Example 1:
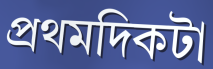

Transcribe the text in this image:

প্রথমদিকটা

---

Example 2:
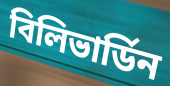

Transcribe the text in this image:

বিলিভার্ডিন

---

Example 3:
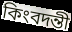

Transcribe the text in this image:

কিংবদন্তী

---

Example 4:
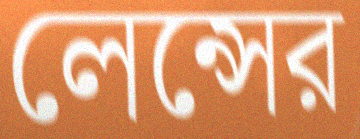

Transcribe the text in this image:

লেন্সের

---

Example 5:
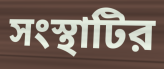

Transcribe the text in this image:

সংস্থাটির